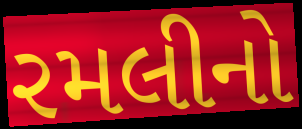
રમલીનો